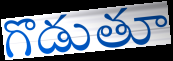
గొడుతూ